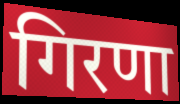
गिरणा